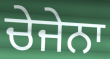
ਚੇਜੇਨਾ